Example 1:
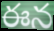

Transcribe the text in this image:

ఈన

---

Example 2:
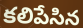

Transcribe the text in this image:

కలిపేసిన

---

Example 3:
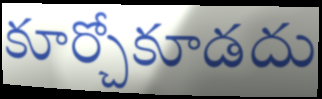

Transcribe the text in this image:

కూర్చోకూడదు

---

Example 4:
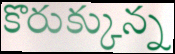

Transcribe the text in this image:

కొరుక్కున్న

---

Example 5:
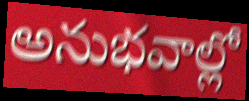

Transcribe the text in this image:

అనుభవాల్లో